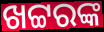
ଖଟ୍ଟରଙ୍କ